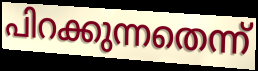
പിറക്കുന്നതെന്ന്